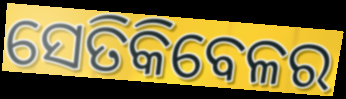
ସେତିକିବେଳର